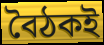
বৈঠকই